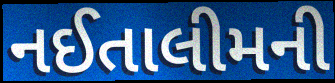
નઈતાલીમની